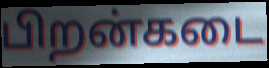
பிறன்கடை